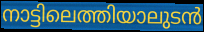
നാട്ടിലെത്തിയാലുടൻ